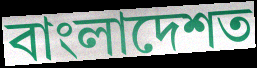
বাংলাদেশত